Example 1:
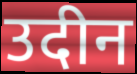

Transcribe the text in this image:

उदीन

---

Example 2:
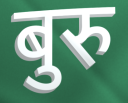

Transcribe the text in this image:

बुरु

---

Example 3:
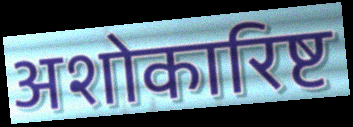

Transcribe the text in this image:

अशोकारिष्ट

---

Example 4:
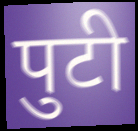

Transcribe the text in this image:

पुटी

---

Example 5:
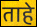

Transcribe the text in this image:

ताहे